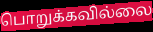
பொறுக்கவில்லை